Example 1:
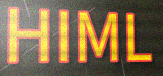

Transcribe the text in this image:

HIML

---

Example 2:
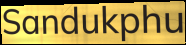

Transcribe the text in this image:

Sandukphu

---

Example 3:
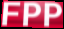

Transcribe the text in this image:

FPP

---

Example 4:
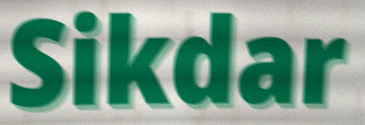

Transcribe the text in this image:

Sikdar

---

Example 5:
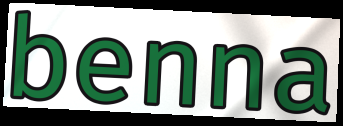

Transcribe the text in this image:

benna